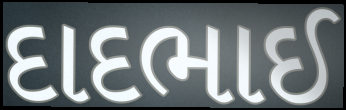
દાદભાઈ